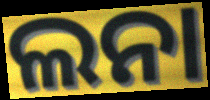
ଲନା